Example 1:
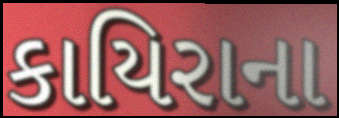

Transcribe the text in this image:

કાયિરાના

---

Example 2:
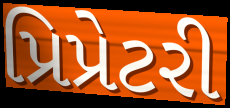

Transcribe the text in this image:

પ્રિપ્રેટરી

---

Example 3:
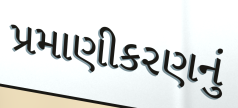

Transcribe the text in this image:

પ્રમાણીકરણનું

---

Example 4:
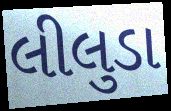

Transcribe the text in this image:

લીલુડા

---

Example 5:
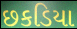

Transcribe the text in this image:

છકડિયા